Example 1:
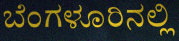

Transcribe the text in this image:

ಬೆಂಗಳೂರಿನಲ್ಲಿ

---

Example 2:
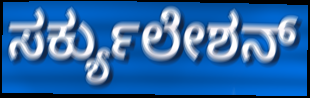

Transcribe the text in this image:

ಸರ್ಕ್ಯುಲೇಶನ್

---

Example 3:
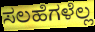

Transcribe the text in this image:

ಸಲಹೆಗಳೆಲ್ಲ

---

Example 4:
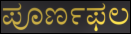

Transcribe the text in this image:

ಪೂರ್ಣಫಲ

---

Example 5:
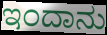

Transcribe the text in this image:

ಇಂದಾನು